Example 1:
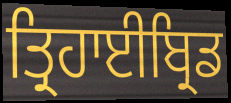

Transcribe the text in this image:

ਤ੍ਰਿਹਾਈਬ੍ਰਿਡ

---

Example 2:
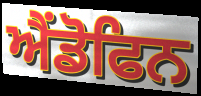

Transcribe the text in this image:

ਐਂਡੋਫਿਨ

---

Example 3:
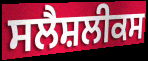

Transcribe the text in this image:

ਸਲੈਸ਼ਲੀਕਸ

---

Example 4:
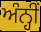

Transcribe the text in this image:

ਅੰਨ੍ਹੀਂ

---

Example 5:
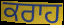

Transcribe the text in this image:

ਕਰਾਹ